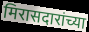
मिरासदारांच्या